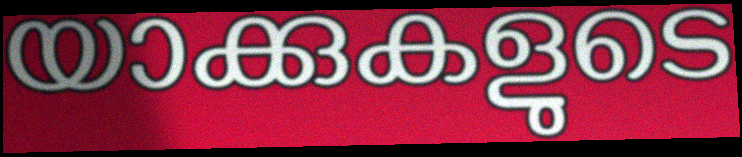
യാക്കുകളുടെ